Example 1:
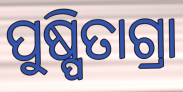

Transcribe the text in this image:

ପୁଷ୍ପିତାଗ୍ରା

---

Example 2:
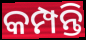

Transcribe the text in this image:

କମ୍ପନ୍ତି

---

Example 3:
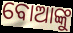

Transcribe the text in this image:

ବୋଆଙ୍କୁ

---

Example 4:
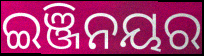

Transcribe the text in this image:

ଇଞ୍ଜିନୟର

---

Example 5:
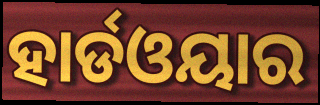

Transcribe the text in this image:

ହାର୍ଡଓୟାର